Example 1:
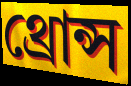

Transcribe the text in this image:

থ্রোন্স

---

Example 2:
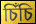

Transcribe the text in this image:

চিঁচি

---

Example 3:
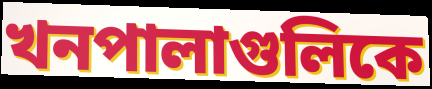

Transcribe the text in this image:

খনপালাগুলিকে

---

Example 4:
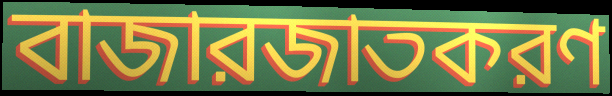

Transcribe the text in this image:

বাজারজাতকরণ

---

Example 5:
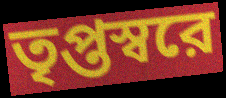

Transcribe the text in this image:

তৃপ্তস্বরে